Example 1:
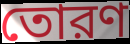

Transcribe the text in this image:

তোরণ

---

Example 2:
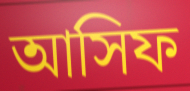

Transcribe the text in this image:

আসিফ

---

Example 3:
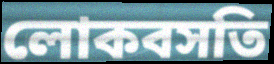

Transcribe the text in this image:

লোকবসতি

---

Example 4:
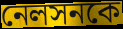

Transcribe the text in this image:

নেলসনকে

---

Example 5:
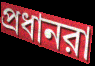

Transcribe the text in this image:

প্রধানরা